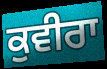
ਕੁਵੀਰਾ